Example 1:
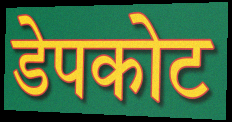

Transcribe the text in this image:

डेपकोट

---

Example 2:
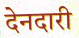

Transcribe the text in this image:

देनदारी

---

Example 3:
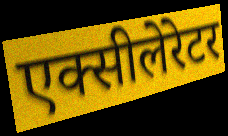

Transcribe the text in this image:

एक्सीलेरेटर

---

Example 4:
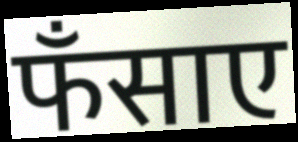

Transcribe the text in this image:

फँसाए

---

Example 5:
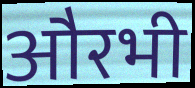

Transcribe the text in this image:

औरभी